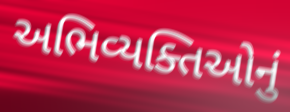
અભિવ્યક્તિઓનું